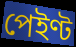
পেইণ্ট